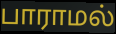
பாராமல்